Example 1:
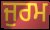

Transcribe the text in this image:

ਜੁਰਮ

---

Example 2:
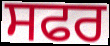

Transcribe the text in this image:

ਸਫਰ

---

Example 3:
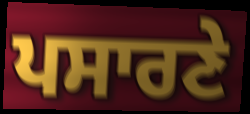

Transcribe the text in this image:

ਪਸਾਰਣੇ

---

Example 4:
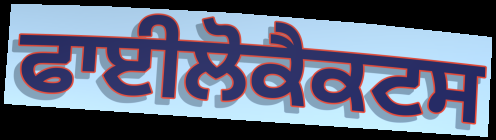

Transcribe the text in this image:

ਫਾਈਲੋਕੈਕਟਸ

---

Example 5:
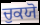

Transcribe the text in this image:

ਚੁਕਯੋ